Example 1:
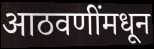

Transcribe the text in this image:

आठवणींमधून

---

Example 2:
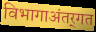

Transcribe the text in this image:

विभागाअंतर्गत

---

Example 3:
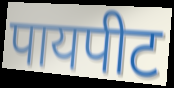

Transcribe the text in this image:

पायपीट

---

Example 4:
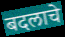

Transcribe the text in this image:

बदलाचे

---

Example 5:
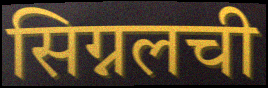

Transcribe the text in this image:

सिग्नलची